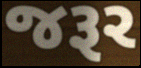
જરૂર